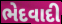
ભેદવાદી